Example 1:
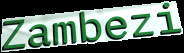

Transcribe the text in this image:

Zambezi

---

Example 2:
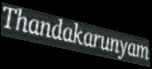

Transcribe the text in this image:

Thandakarunyam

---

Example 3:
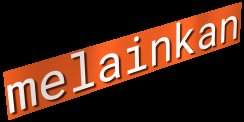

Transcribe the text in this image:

melainkan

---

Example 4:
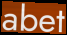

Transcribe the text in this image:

abet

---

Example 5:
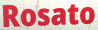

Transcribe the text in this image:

Rosato